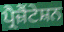
ਪ੍ਰੈਜ਼ੈਂਟੇਸ਼ਨ